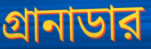
গ্রানাডার